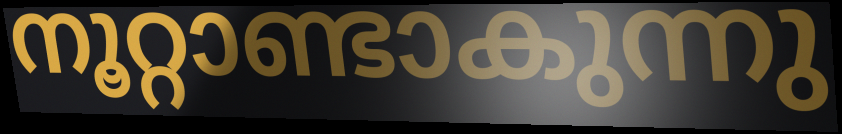
നൂറ്റാണ്ടാകുന്നു